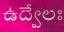
ఉద్వేలః